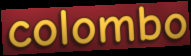
colombo